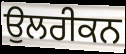
ਉਲਰੀਕਨ